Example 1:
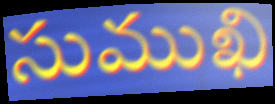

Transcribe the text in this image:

సుముఖి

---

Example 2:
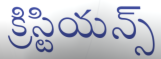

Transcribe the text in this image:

క్రిస్టియన్స్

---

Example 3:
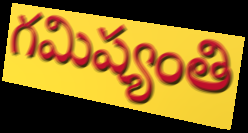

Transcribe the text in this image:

గమిష్యంతి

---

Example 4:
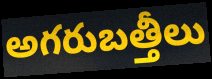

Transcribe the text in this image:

అగరుబత్తీలు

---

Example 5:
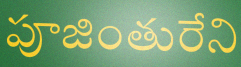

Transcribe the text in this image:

పూజింతురేని